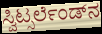
ಸ್ವಿಟ್ಸರ್ಲೆಂಡ್‌ನ